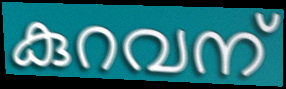
കുറവന്